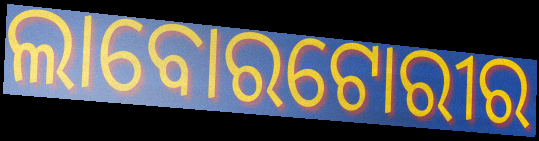
ଲାବୋରଟୋରୀର